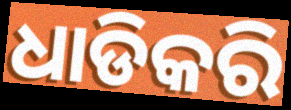
ଧାଡିକରି